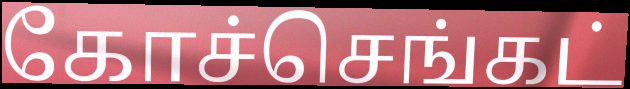
கோச்செங்கட்